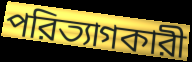
পরিত্যাগকারী